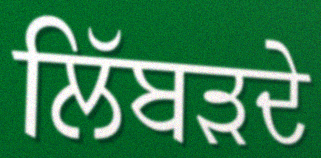
ਲਿੱਬੜਦੇ